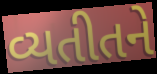
વ્યતીતને